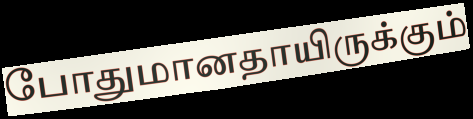
போதுமானதாயிருக்கும்